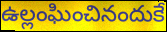
ఉల్లంఘించినందుకే